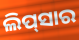
ଲିପ୍‌ସାର